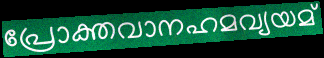
പ്രോക്തവാനഹമവ്യയമ്